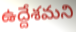
ఉద్దేశమని